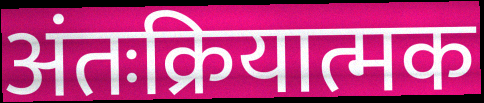
अंतःक्रियात्मक